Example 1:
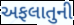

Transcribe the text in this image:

અફલાતુની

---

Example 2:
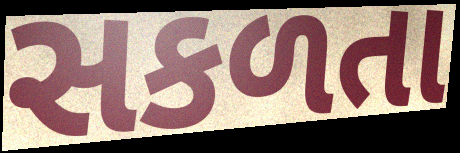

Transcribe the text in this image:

સકળતા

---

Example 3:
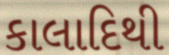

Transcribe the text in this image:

કાલાદિથી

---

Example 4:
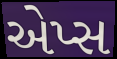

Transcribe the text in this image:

એપ્સ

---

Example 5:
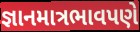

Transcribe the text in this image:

જ્ઞાનમાત્રભાવપણે